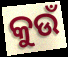
କୁଉଁ